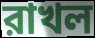
রাখল